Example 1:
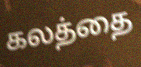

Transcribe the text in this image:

கலத்தை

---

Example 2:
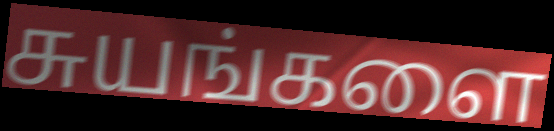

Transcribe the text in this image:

சுயங்களை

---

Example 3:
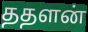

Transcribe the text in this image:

ததளன்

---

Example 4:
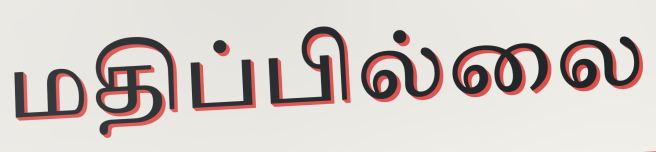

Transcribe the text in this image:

மதிப்பில்லை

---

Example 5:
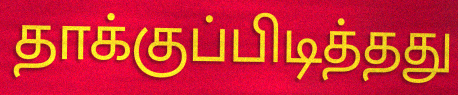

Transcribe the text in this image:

தாக்குப்பிடித்தது